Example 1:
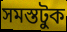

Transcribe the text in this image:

সমস্তটুক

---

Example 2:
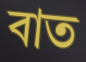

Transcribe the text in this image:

বাত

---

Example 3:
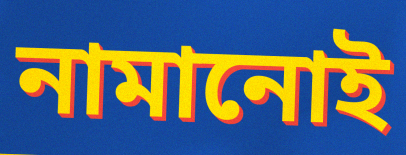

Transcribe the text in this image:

নামানোই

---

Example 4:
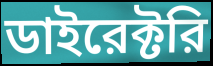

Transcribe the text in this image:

ডাইরেক্টরি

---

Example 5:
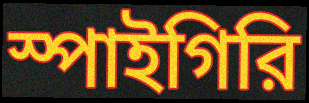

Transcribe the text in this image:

স্পাইগিরি